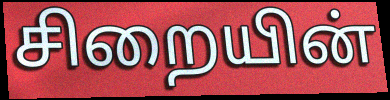
சிறையின்